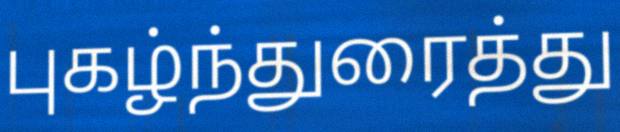
புகழ்ந்துரைத்து